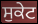
ਸੁਕੇਟ